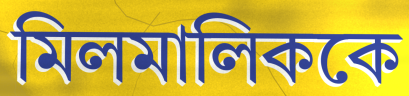
মিলমালিককে